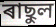
ৰাছুল